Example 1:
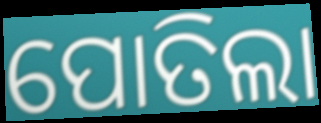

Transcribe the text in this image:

ପୋତିଲା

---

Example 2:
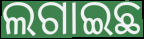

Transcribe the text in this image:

ଲଗାଇଛ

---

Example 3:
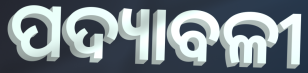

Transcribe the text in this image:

ପଦ୍ୟାବଳୀ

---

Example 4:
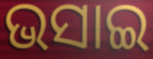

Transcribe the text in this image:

ଭସାଇ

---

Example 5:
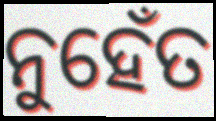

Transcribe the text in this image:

ନୁହେଁତ